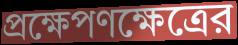
প্রক্ষেপণক্ষেত্রের